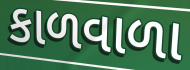
કાળવાળા